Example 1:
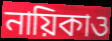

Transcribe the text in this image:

নায়িকাও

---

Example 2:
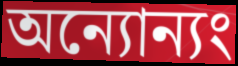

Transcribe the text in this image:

অন্যোন্যং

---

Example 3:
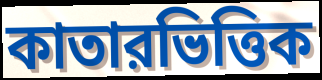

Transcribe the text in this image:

কাতারভিত্তিক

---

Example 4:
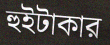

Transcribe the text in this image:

হুইটাকার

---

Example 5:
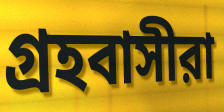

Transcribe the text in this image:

গ্রহবাসীরা